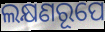
ଲକ୍ଷଣରୂପେ